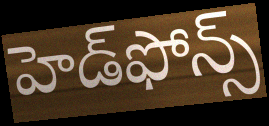
హెడ్‌ఫోన్స్